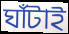
ঘাঁটাই